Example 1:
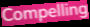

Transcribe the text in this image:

Compelling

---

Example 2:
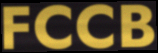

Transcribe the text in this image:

FCCB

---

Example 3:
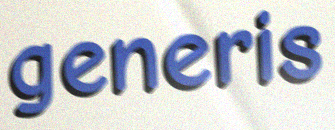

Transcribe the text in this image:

generis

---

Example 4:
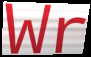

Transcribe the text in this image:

Wr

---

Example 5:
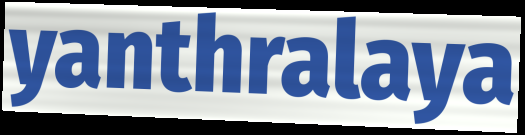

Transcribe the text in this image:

yanthralaya